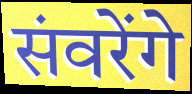
संवरेंगे